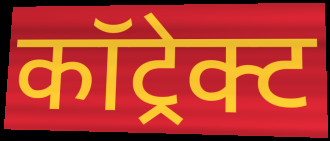
कॉट्रेक्ट